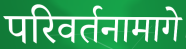
परिवर्तनामागे